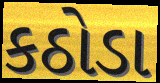
કઠોડા